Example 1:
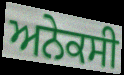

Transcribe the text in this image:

ਅਨੇਕਸੀ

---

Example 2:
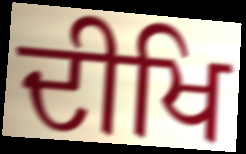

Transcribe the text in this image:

ਦੀਖਿ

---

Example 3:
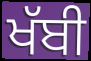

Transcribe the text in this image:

ਖੱਬੀ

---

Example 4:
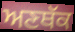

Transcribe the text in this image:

ਅਣਥੱਕ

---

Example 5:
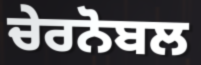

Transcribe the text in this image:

ਚੇਰਨੋਬਲ